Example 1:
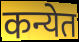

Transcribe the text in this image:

कन्येत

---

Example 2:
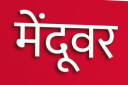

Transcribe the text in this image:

मेंदूवर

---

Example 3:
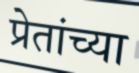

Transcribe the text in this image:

प्रेतांच्या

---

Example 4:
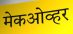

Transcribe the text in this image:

मेकओव्हर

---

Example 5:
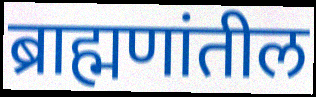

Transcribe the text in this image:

ब्राह्मणांतील